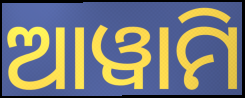
ଆୱାମି